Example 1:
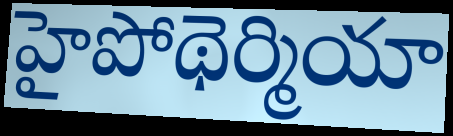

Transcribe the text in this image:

హైపోథెర్మియా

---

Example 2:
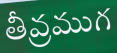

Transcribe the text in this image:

తీవ్రముగ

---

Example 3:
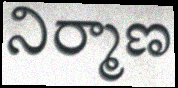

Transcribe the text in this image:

నిర్మాణ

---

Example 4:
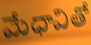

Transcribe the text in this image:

మేధావితో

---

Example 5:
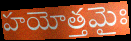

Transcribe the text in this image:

హయోత్తమైః